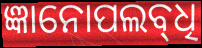
ଜ୍ଞାନୋପଲବ୍‌ଧି